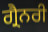
ਗ੍ਰੈਨਰੀ